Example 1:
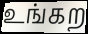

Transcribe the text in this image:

உங்கற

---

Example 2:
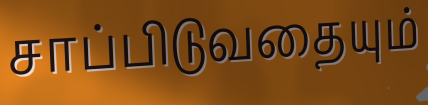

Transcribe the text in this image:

சாப்பிடுவதையும்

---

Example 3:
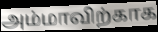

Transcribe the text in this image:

அம்மாவிற்காக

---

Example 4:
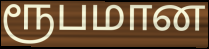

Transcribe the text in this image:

ரூபமான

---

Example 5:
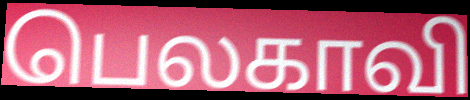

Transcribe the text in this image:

பெலகாவி